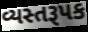
વ્યસ્તરૂપક